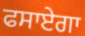
ਫਸਾਏਗਾ